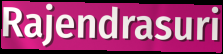
Rajendrasuri